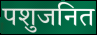
पशुजनित